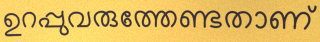
ഉറപ്പുവരുത്തേണ്ടതാണ്